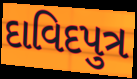
દાવિદપુત્ર